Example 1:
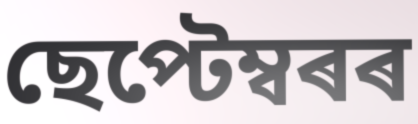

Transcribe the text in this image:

ছেপ্টেম্বৰৰ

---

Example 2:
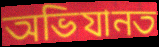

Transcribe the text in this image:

অভিযানত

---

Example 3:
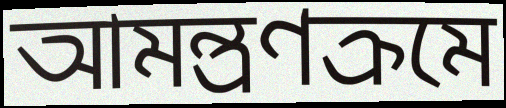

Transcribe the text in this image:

আমন্ত্ৰণক্ৰমে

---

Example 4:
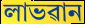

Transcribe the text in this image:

লাভৱান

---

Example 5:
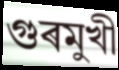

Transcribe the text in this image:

গুৰমুখী